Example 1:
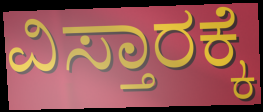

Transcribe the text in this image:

ವಿಸ್ತಾರಕ್ಕೆ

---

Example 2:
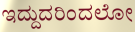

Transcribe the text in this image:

ಇದ್ದುದರಿಂದಲೋ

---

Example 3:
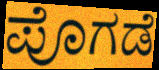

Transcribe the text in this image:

ಪೊಗಡೆ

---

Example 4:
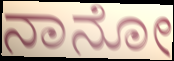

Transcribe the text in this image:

ನಾನೋ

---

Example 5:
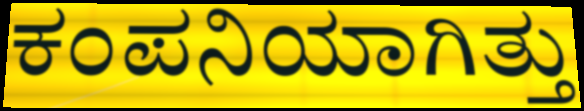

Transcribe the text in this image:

ಕಂಪನಿಯಾಗಿತ್ತು